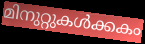
മിനുറ്റുകൾക്കകം